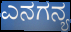
ಎನಗನ್ಯ